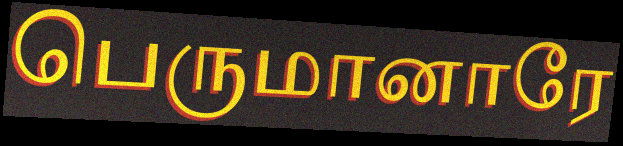
பெருமானாரே